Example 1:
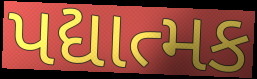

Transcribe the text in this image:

પદ્યાત્મક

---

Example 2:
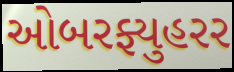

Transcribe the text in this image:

ઓબરફ્યુહરર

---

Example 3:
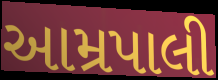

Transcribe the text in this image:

આમ્રપાલી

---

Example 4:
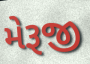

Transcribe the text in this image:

મેરૂજી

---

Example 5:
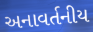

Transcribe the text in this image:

અનાવર્તનીય